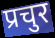
प्रचुर